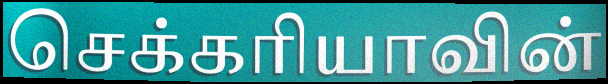
செக்கரியாவின்